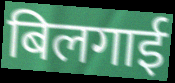
बिलगाई